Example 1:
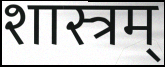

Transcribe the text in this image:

शास्त्रम्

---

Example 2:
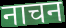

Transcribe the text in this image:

नाचन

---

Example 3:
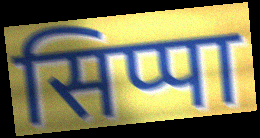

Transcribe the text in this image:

सिप्पा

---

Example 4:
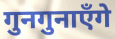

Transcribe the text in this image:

गुनगुनाएँगे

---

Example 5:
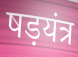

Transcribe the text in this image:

षड़यंत्र